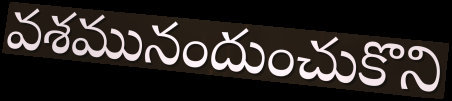
వశమునందుంచుకొని